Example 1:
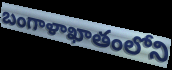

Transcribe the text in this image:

బంగాళాఖాతంలోని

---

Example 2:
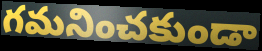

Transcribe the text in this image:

గమనించకుండా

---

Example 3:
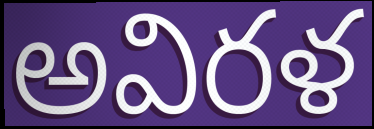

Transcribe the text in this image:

అవిరళ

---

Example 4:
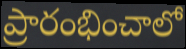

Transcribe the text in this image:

ప్రారంభించాలో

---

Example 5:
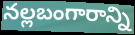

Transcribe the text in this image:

నల్లబంగారాన్ని